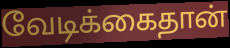
வேடிக்கைதான்